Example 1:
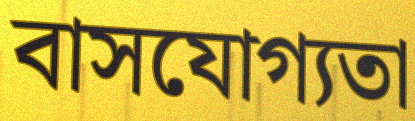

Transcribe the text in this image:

বাসযোগ্যতা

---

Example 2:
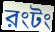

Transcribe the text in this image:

রংটং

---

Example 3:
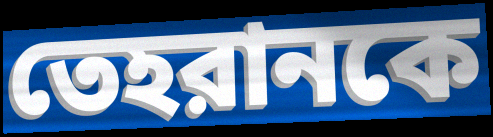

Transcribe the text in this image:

তেহরানকে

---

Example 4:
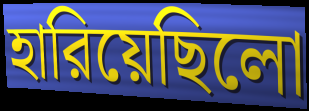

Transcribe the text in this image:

হারিয়েছিলো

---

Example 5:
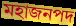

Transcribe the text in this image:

মহাজনপদ